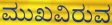
ಮುಖವಿರುವ